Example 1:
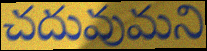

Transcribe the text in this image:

చదువుమని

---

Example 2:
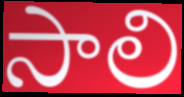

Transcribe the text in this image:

సాలి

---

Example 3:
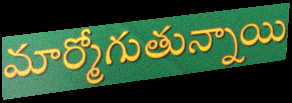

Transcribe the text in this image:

మార్మోగుతున్నాయి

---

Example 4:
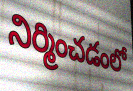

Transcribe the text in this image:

నిర్మించడంలో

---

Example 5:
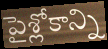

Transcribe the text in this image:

పైశ్లోకాన్ని